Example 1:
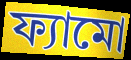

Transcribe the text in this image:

ফ্যামো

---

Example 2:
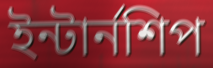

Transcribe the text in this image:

ইন্টার্নশিপ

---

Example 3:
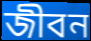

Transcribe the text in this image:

জীবন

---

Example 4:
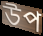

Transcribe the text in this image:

উপ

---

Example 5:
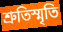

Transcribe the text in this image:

শ্রুতিস্মৃতি